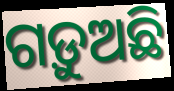
ଗଡ଼ୁଅଛି